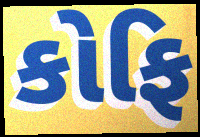
કોફિ